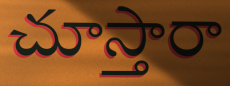
చూస్తారా